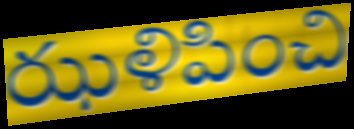
ఝళిపించి